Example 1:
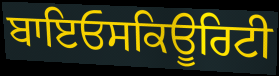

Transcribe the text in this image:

ਬਾਇਓਸਕਿਊਰਿਟੀ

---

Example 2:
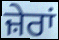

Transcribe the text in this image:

ਜ਼ੇਰਾਂ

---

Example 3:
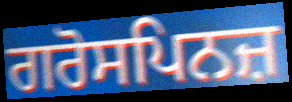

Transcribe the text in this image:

ਗਰੋਸਪਿਨਜ਼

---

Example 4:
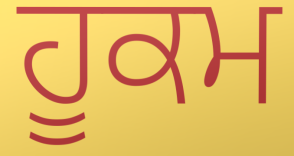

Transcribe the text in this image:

ਹੂਕਮ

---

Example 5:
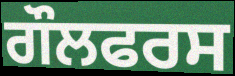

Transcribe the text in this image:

ਗੌਲਫਰਸ